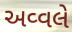
અવ્વલે